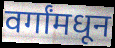
वर्गांमधून